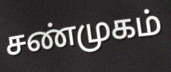
சண்முகம்